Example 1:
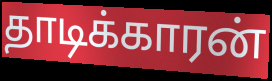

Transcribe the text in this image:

தாடிக்காரன்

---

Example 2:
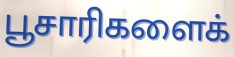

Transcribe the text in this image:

பூசாரிகளைக்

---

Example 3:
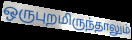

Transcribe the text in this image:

ஒருபுறமிருந்தாலும்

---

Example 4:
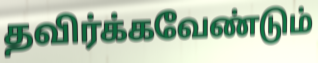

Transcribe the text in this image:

தவிர்க்கவேண்டும்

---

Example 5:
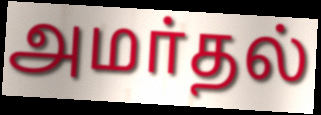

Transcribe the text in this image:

அமர்தல்